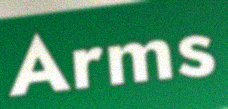
Arms